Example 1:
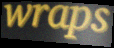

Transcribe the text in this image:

wraps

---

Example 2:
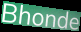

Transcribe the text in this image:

Bhonde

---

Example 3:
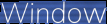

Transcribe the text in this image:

Window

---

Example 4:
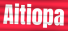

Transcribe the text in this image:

Aitiopa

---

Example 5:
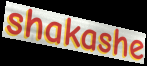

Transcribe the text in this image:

shakashe